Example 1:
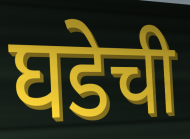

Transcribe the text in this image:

घडेची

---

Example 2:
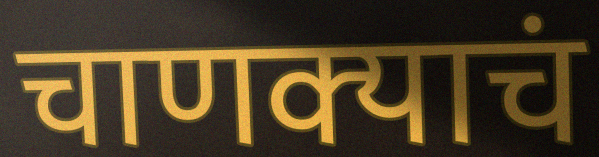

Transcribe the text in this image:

चाणक्याचं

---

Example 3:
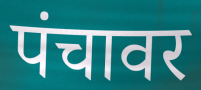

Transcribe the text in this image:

पंचावर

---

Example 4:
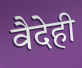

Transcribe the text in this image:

वैदेही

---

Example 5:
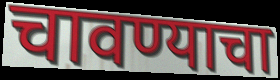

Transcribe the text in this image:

चावण्याचा